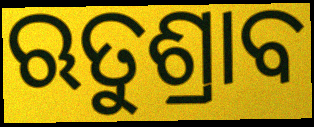
ଋତୁଶ୍ରାବ